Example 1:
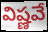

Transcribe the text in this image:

విష్ణవే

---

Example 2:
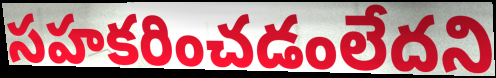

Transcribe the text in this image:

సహకరించడంలేదని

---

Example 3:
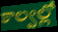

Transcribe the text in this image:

కాల్వల్లో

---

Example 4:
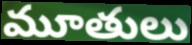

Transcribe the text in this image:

మూతులు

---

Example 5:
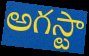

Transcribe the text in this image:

అగస్టా